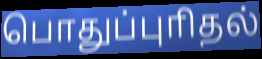
பொதுப்புரிதல்